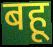
बहू